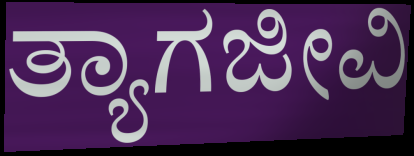
ತ್ಯಾಗಜೀವಿ